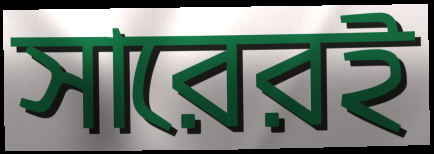
সারেরই